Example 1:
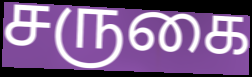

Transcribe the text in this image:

சருகை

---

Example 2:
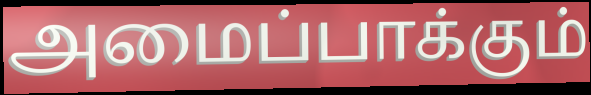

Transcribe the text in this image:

அமைப்பாக்கும்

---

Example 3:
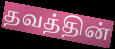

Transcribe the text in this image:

தவத்தின்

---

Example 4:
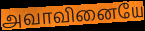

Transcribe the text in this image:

அவாவினையே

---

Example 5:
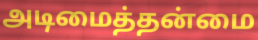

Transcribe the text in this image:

அடிமைத்தன்மை